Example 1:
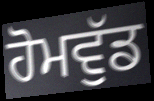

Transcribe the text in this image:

ਹੋਮਵੁੱਡ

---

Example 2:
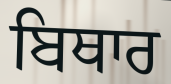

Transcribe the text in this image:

ਬਿਥਾਰ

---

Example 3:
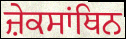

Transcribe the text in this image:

ਜ਼ੇਕਸਾਂਥਿਨ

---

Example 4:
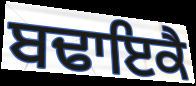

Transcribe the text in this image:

ਬਢਾਇਕੈ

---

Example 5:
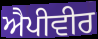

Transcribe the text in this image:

ਐਪੀਵੀਰ